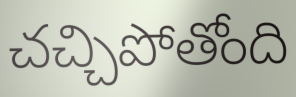
చచ్చిపోతోంది